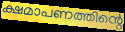
ക്ഷമാപണത്തിന്റെ